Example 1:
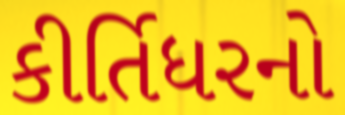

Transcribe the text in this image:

કીર્તિધરનો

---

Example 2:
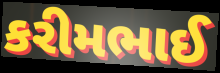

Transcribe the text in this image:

કરીમભાઈ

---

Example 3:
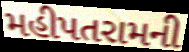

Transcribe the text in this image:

મહીપતરામની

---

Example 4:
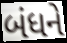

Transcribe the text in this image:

બંધને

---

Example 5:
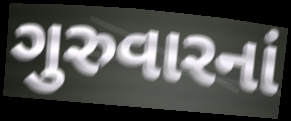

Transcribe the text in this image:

ગુરુવારનાં